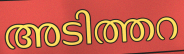
അടിത്തറ